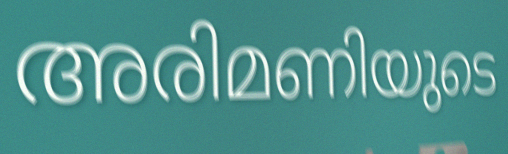
അരിമണിയുടെ